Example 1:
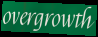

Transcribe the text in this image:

overgrowth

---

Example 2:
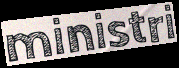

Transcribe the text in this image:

ministri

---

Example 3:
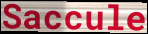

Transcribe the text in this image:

Saccule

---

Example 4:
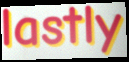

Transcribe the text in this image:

lastly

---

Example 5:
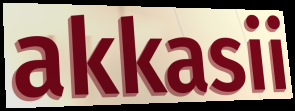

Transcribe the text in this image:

akkasii